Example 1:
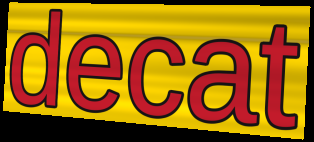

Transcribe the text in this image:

decat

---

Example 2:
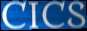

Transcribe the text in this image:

CICS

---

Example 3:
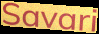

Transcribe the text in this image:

Savari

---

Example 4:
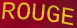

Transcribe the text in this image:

ROUGE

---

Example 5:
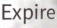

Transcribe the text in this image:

Expire